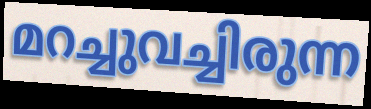
മറച്ചുവച്ചിരുന്ന